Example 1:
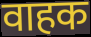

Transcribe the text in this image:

वाहक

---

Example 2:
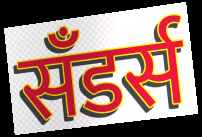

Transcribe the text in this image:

सॅंडर्स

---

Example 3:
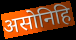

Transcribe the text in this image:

असोनिहि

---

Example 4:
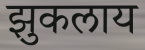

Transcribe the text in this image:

झुकलाय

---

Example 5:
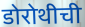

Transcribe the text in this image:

डोरोथीची